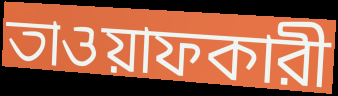
তাওয়াফকারী